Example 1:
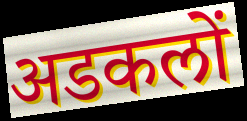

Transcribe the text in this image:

अडकलों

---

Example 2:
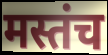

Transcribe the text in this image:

मस्तंच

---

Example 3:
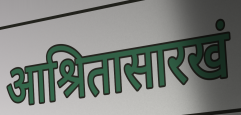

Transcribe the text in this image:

आश्रितासारखं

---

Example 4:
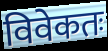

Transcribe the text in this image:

विवेकतः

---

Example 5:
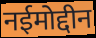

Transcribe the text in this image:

नईमोद्दीन